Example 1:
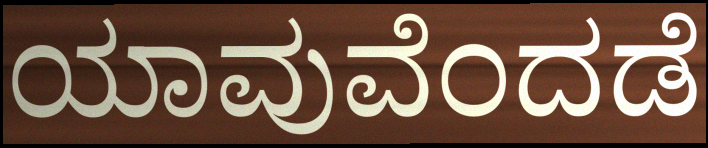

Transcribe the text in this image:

ಯಾವುವೆಂದಡೆ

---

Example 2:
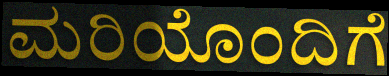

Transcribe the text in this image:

ಮರಿಯೊಂದಿಗೆ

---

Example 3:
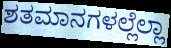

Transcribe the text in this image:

ಶತಮಾನಗಳಲ್ಲೆಲ್ಲಾ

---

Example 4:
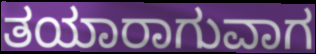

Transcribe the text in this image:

ತಯಾರಾಗುವಾಗ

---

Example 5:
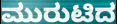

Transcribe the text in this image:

ಮುರುಟಿದ